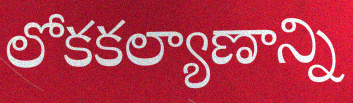
లోకకల్యాణాన్ని